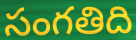
సంగతిది